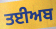
ਤਈਅਬ